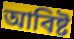
আবিষ্ট